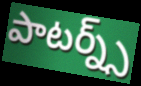
పాటర్న్స్